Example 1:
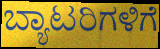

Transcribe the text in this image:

ಬ್ಯಾಟರಿಗಳಿಗೆ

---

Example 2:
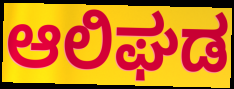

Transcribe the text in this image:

ಆಲಿಘಡ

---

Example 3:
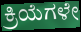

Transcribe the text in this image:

ಕ್ರಿಯೆಗಳೇ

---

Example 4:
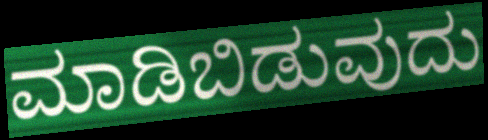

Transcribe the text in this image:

ಮಾಡಿಬಿಡುವುದು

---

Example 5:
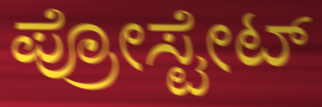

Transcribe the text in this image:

ಪ್ರೋಸ್ಟೇಟ್